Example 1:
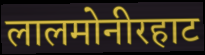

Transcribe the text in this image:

लालमोनीरहाट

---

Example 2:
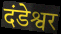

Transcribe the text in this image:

दंडेश्वर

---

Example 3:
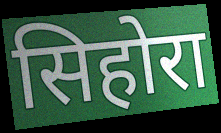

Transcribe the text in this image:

सिहोरा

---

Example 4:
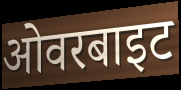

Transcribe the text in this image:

ओवरबाइट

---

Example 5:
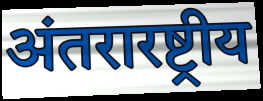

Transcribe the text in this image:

अंतरारष्ट्रीय